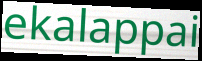
ekalappai